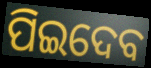
ପିଇଦେବ